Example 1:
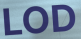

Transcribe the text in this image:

LOD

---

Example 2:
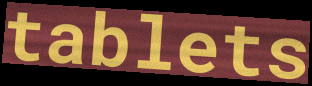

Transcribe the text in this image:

tablets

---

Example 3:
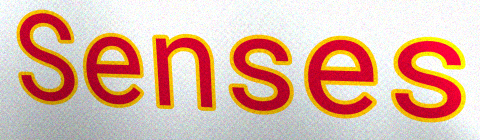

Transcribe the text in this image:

Senses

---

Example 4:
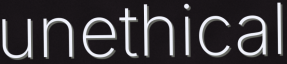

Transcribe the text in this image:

unethical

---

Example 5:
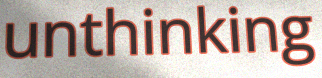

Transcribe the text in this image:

unthinking